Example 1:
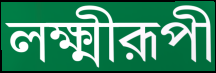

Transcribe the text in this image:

লক্ষ্মীরূপী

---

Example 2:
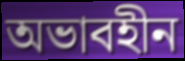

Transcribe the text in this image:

অভাবহীন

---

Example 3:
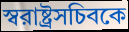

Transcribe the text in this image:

স্বরাষ্ট্রসচিবকে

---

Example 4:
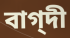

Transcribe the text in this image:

বাগ্‌দী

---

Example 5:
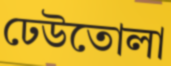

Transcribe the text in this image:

ঢেউতোলা